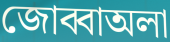
জোব্বাঅলা